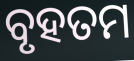
ବୃହତମ